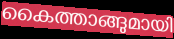
കൈത്താങ്ങുമായി